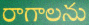
రాగాలను